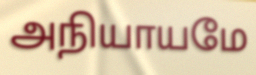
அநியாயமே